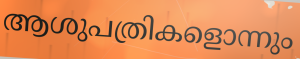
ആശുപത്രികളൊന്നും